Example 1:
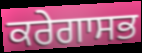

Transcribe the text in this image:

ਕਰੇਗਾਸਭ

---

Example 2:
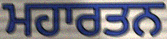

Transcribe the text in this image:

ਮਹਾਰਤਨ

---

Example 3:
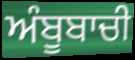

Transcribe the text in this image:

ਅੰਬੂਬਾਚੀ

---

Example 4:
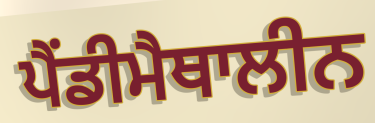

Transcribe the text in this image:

ਪੈਂਡੀਮੈਥਾਲੀਨ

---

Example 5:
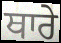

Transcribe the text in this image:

ਥਾਰੇ